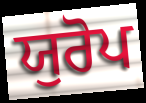
ਯੁਰੋਪ